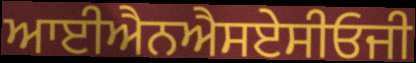
ਆਈਐਨਐਸਏਸੀਓਜੀ